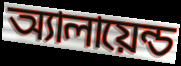
অ্যালায়েন্ড